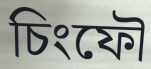
চিংফৌ